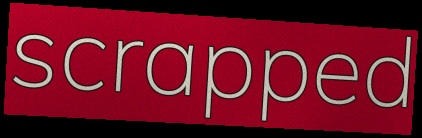
scrapped